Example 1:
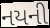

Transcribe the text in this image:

નયની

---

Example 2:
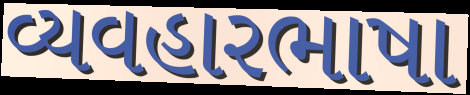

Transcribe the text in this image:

વ્યવહારભાષા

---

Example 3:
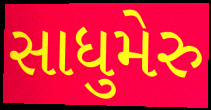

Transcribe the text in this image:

સાધુમેરુ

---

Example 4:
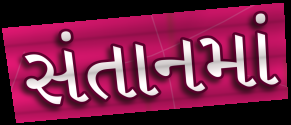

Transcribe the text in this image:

સંતાનમાં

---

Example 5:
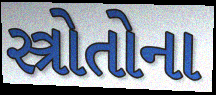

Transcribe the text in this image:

સ્ત્રોતોના